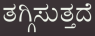
ತಗ್ಗಿಸುತ್ತದೆ